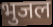
भुजल